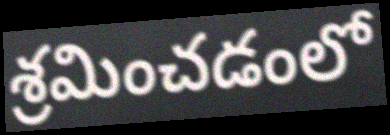
శ్రమించడంలో